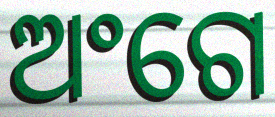
ଅଂଗେ